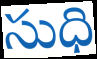
సుధి